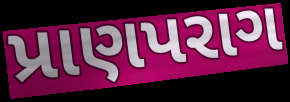
પ્રાણપરાગ